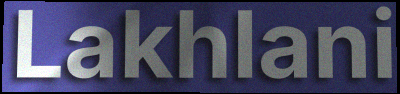
Lakhlani